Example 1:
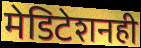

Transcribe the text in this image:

मेडिटेशनही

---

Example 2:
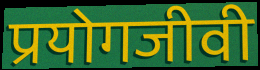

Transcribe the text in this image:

प्रयोगजीवी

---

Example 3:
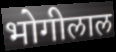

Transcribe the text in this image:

भोगीलाल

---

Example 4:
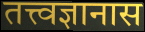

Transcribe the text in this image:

तत्त्वज्ञानास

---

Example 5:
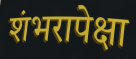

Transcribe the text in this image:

शंभरापेक्षा